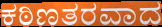
ಕಠಿಣತರವಾದ